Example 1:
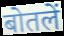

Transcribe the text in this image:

बोतलें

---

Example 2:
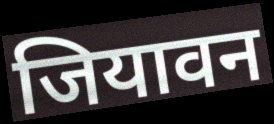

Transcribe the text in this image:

जियावन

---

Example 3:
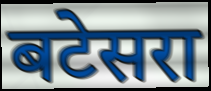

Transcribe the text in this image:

बटेसरा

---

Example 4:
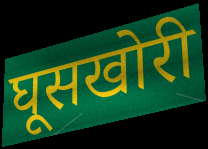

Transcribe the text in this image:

घूसखोरी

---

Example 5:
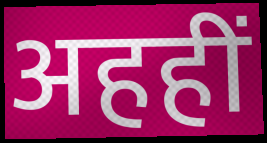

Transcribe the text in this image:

अहहीं